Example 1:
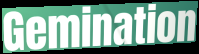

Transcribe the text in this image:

Gemination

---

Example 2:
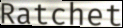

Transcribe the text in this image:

Ratchet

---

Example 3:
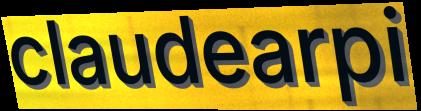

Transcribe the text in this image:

claudearpi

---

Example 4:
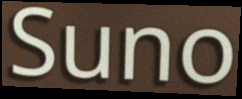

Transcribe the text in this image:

Suno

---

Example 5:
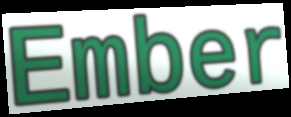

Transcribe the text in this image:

Ember